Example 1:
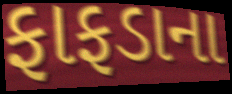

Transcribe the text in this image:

ફાફડાના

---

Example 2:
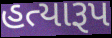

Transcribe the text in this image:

હત્યારૂપ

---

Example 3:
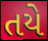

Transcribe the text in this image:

તયે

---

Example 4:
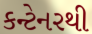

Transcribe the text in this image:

કન્ટેનરથી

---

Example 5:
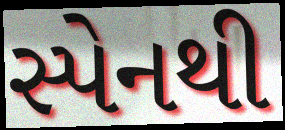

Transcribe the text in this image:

સ્પેનથી